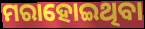
ମରାହୋଇଥିବା